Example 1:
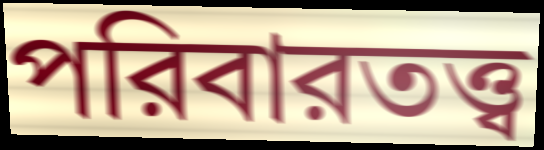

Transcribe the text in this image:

পরিবারতত্ত্ব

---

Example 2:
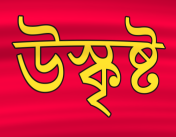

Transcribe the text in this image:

উস্কৃষ্ট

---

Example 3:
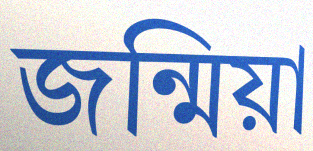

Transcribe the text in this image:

জন্মিয়া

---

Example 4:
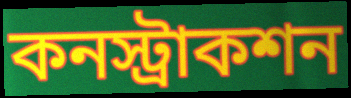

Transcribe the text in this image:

কনস্ট্রাকশন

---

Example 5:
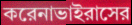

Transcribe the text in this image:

করেনাভাইরাসের